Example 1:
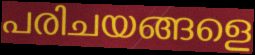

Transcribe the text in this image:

പരിചയങ്ങളെ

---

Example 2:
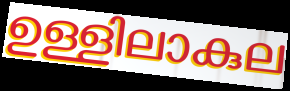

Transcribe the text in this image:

ഉള്ളിലാകുല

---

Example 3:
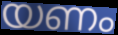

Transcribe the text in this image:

യണം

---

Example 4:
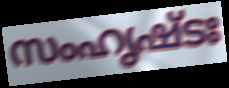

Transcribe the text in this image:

സംഹൃഷ്ടഃ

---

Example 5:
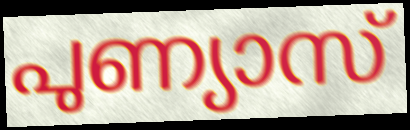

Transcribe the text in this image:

പുണ്യാസ്